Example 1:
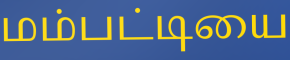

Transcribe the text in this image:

மம்பட்டியை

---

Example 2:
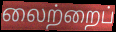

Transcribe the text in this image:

லைற்றைப்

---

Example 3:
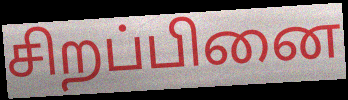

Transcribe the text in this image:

சிறப்பினை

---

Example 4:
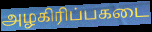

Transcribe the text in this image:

அழகிரிப்பகடை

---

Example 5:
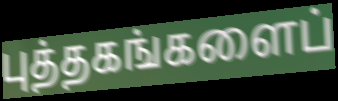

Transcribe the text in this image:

புத்தகங்களைப்